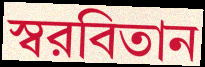
স্বরবিতান